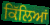
ਕਿੱਲਿਆਂ